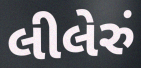
લીલેરું